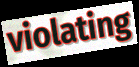
violating